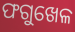
ଫଗୁଖେଳ